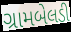
ગ્રામબેલડી